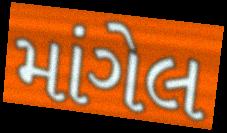
માંગેલ